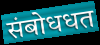
संबोधधत